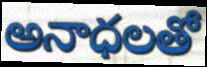
అనాధలతో